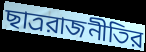
ছাত্ররাজনীতির